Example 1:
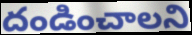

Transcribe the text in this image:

దండించాలని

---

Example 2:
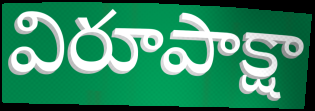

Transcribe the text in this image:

విరూపాక్షా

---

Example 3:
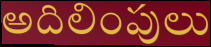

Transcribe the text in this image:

అదిలింపులు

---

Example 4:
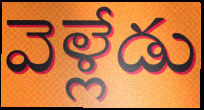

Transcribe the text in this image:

వెళ్లేడు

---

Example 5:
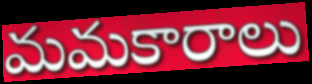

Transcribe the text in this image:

మమకారాలు